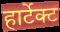
हार्टेक्ट